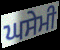
ਘਸੇਮੀ